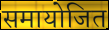
समायोजित